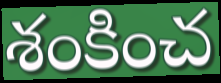
శంకించ